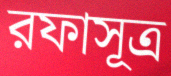
রফাসূত্র